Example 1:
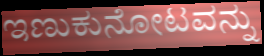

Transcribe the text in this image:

ಇಣುಕುನೋಟವನ್ನು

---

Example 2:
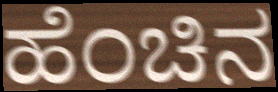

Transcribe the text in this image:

ಹೆಂಚಿನ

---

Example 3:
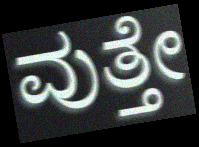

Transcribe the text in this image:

ವುತ್ತೇ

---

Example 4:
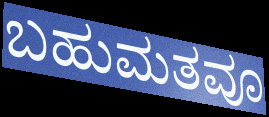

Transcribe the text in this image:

ಬಹುಮತವೂ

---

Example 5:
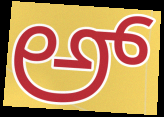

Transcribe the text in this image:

ಅ್